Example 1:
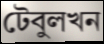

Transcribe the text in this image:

টেবুলখন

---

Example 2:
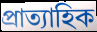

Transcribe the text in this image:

প্ৰাত্যাহিক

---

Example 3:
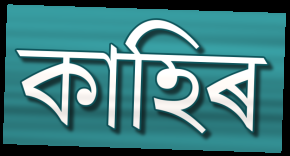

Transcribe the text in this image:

কাহিৰ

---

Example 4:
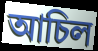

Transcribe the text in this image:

আচিল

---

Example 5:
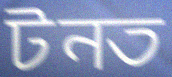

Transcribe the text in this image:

টনত